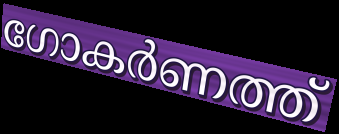
ഗോകർണത്ത്